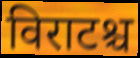
विराटश्च